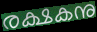
രക്ഷകനു